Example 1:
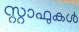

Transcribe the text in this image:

സ്റ്റാഫുകൾ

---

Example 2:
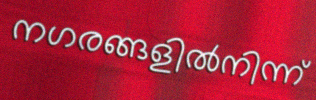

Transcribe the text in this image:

നഗരങ്ങളിൽനിന്ന്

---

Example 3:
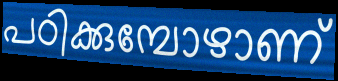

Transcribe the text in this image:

പഠിക്കുമ്പോഴാണ്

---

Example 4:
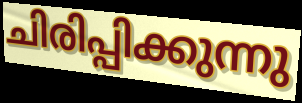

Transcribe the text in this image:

ചിരിപ്പിക്കുന്നു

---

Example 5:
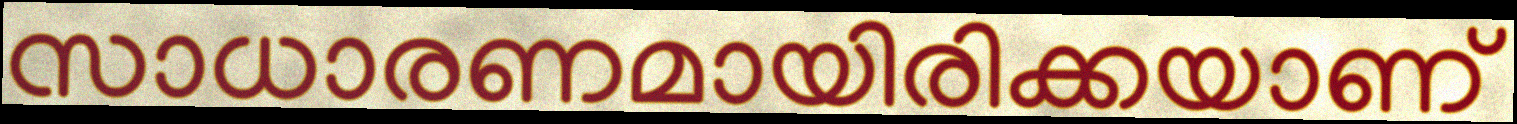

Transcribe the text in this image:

സാധാരണമായിരിക്കയാണ്